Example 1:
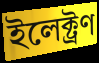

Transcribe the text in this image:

ইলেক্ট্ৰণ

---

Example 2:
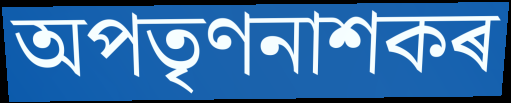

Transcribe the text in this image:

অপতৃণনাশকৰ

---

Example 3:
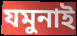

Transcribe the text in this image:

যমুনাই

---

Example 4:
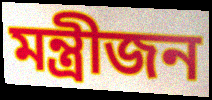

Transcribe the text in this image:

মন্ত্ৰীজন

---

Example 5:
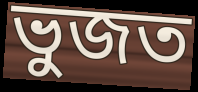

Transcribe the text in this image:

ভুজত